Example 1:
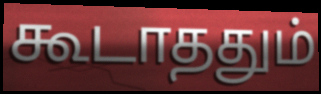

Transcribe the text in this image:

கூடாததும்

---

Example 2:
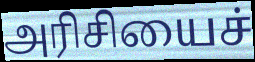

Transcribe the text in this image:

அரிசியைச்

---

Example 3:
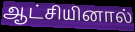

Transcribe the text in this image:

ஆட்சியினால்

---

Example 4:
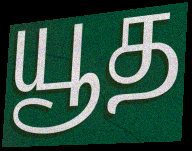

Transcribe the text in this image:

யூத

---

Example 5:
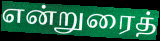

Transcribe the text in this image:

என்றுரைத்